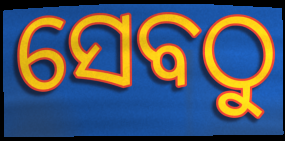
ସେବଠୁ